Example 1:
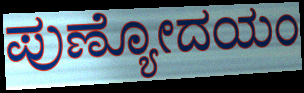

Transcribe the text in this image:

ಪುಣ್ಯೋದಯಂ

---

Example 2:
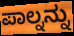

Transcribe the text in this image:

ಪಾಲ್ನನ್ನು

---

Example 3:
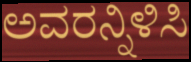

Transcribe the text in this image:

ಅವರನ್ನಿಳಿಸಿ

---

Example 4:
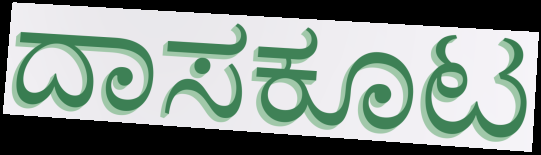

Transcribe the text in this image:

ದಾಸಕೂಟ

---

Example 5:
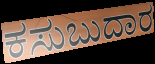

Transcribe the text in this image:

ಕಸುಬುದಾರ